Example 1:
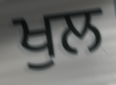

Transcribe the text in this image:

ਖੁਲ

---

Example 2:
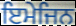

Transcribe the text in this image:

ਇਮੇਜਿਨ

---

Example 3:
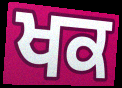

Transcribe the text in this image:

ਖਕ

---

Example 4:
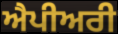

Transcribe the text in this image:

ਐਪੀਅਰੀ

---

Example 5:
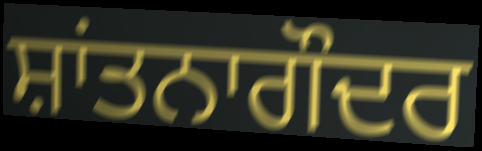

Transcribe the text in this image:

ਸ਼ਾਂਤਨਾਗੌਦਰ